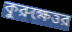
কুরুক্ষেত্তর